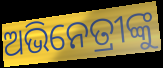
ଅଭିନେତ୍ରୀଙ୍କୁ